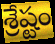
శ్రేష్టం